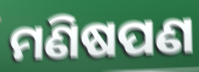
ମଣିଷପଣ